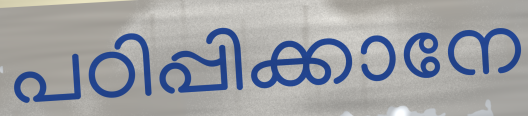
പഠിപ്പിക്കാനേ